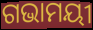
ଗଭାମୟୀ